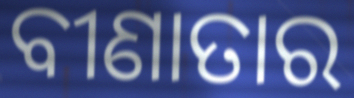
ବୀଣାତାର